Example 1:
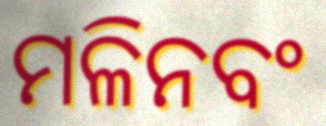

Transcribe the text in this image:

ମଳିନବଂ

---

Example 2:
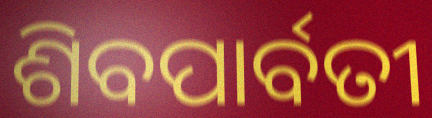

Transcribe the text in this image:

ଶିବପାର୍ବତୀ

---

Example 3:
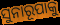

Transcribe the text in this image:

ସୁନାରୂପାକୁ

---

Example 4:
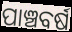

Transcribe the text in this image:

ପାଞ୍ଚବର୍ଷ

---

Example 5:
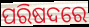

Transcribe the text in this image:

ପରିଷଦରେ